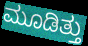
ಮೂಡಿತ್ತು